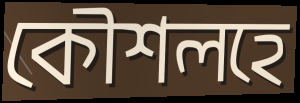
কৌশলহে